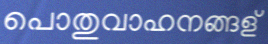
പൊതുവാഹനങ്ങള്